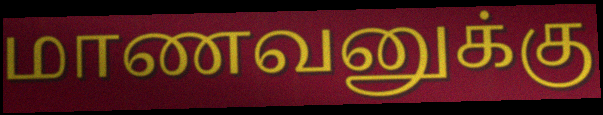
மாணவனுக்கு